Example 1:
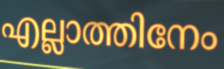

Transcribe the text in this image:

എല്ലാത്തിനേം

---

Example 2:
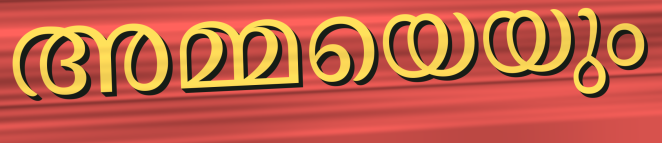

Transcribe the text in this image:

അമ്മയെയും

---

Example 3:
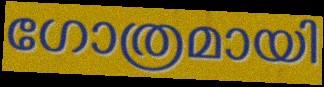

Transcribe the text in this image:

ഗോത്രമായി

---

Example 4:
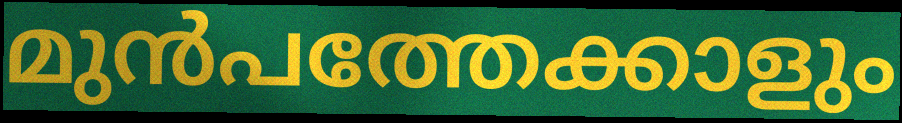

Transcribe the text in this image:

മുൻപത്തേക്കാളും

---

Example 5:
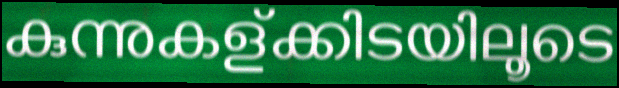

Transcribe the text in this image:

കുന്നുകള്ക്കിടയിലൂടെ